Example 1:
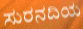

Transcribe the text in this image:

ಸುರನದಿಯ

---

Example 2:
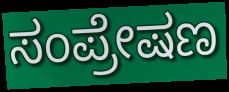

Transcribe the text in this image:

ಸಂಪ್ರೇಷಣ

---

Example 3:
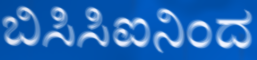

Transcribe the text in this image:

ಬಿಸಿಸಿಐನಿಂದ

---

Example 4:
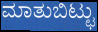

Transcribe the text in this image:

ಮಾತುಬಿಟ್ಟು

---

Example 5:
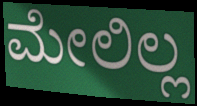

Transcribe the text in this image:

ಮೇಲಿಲ್ಲ